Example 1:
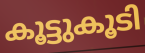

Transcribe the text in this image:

കൂട്ടുകൂടി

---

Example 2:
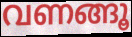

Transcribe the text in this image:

വണങ്ങൂ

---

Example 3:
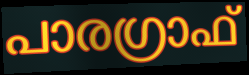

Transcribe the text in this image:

പാരഗ്രാഫ്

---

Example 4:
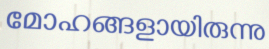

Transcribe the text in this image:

മോഹങ്ങളായിരുന്നു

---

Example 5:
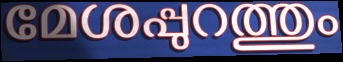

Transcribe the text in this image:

മേശപ്പുറത്തും